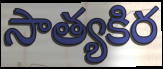
సాత్యకిర